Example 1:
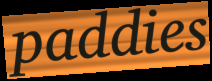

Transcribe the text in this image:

paddies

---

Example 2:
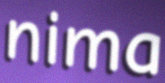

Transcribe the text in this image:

nima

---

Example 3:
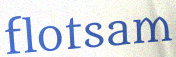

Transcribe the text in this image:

flotsam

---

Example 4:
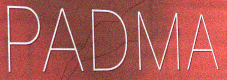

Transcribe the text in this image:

PADMA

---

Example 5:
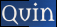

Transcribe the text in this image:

Quin